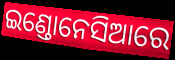
ଇଣ୍ଡୋନେସିଆରେ